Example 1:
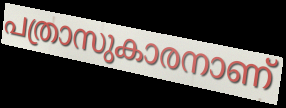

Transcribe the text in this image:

പത്രാസുകാരനാണ്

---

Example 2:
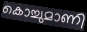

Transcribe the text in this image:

കൊച്ചുമാണി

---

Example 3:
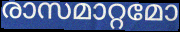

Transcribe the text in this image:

രാസമാറ്റമോ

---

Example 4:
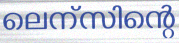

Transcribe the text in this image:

ലെന്സിന്റെ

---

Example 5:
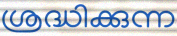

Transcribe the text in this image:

ശ്രദ്ധിക്കുന്ന